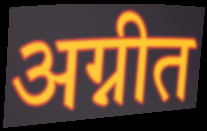
अग्नीत